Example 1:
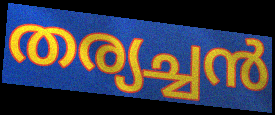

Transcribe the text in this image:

തര്യച്ചൻ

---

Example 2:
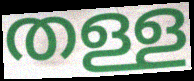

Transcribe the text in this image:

തള്ള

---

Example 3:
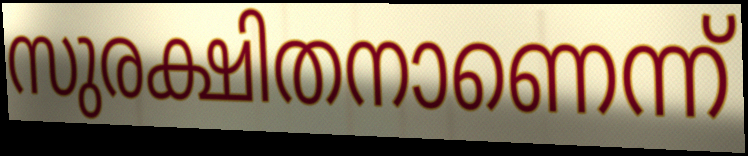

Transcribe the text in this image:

സുരക്ഷിതനാണെന്ന്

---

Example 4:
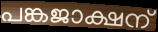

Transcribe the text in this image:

പങ്കജാക്ഷന്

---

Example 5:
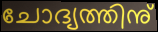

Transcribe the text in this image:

ചോദ്യത്തിനു്